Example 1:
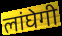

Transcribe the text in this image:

लांघेगी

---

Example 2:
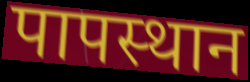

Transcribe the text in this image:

पापस्थान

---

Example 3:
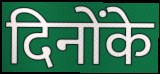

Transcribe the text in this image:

दिनोंके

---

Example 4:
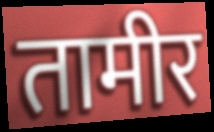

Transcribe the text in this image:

तामीर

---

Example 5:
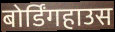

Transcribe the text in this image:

बोर्डिंगहाउस